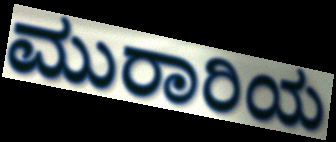
ಮುರಾರಿಯ